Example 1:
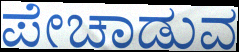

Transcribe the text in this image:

ಪೇಚಾಡುವ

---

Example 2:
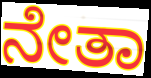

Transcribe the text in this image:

ನೇತಾ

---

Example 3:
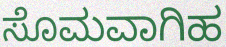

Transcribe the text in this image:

ಸೊಮವಾಗಿಹ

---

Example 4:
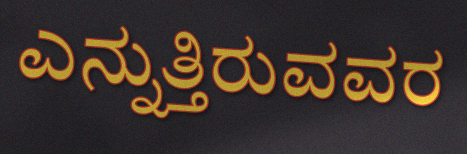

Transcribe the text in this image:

ಎನ್ನುತ್ತಿರುವವರ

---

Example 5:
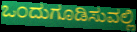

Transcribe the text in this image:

ಒಂದುಗೂಡಿಸುವಲ್ಲಿ